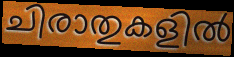
ചിരാതുകളിൽ